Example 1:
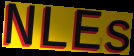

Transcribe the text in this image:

NLEs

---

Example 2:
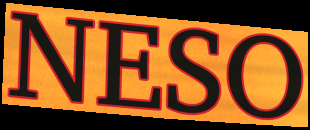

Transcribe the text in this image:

NESO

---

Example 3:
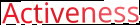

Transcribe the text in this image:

Activeness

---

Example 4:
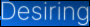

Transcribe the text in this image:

Desiring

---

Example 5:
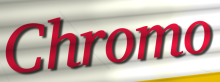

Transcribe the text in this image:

Chromo